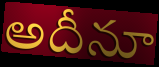
అదీనూ